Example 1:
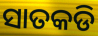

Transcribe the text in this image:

ସାତକଡି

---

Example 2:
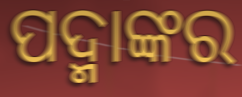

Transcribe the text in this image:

ପଦ୍ମାଙ୍କର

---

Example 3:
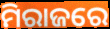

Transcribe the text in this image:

ମିରାଜରେ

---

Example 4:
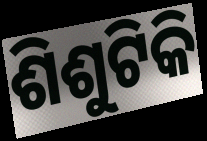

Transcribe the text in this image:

ଶିଶୁଟିକି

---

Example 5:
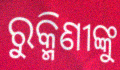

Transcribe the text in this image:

ରୁକ୍ମିଣୀଙ୍କୁ